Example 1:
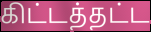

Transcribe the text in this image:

கிட்டத்தட்ட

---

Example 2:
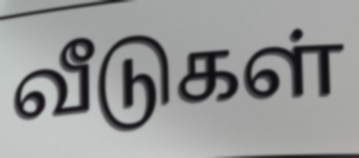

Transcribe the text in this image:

வீடுகள்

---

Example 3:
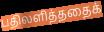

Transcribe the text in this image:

பதிலளித்ததைக்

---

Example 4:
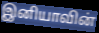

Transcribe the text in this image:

இனியாவின்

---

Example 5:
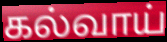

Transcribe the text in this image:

கல்வாய்